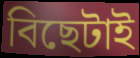
বিছেটাই